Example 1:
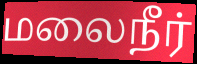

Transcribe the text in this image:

மலைநீர்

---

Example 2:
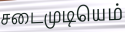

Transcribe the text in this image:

சடைமுடியெம்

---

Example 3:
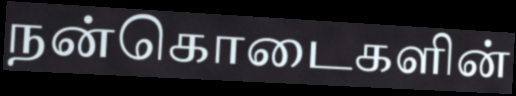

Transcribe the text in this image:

நன்கொடைகளின்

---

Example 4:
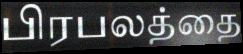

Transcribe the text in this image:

பிரபலத்தை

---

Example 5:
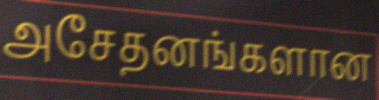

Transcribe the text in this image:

அசேதனங்களான